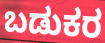
ಬಡುಕರ